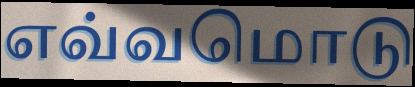
எவ்வமொடு